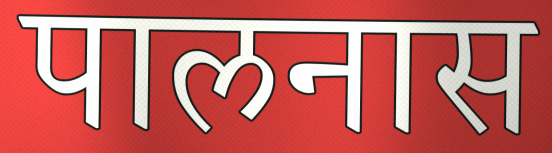
पालनास